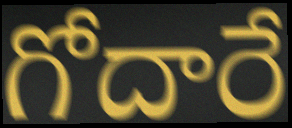
గోదారే